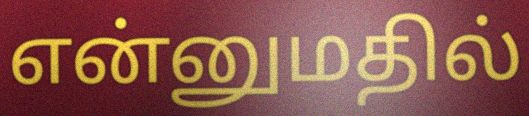
என்னுமதில்